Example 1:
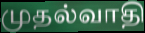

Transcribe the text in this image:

முதல்வாதி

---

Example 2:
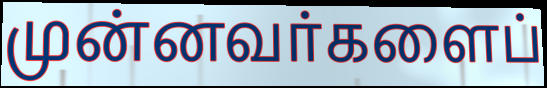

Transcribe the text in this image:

முன்னவர்களைப்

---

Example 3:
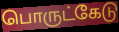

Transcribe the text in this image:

பொருட்கேடு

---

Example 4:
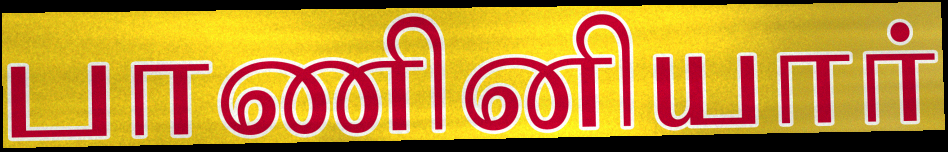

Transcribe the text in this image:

பாணினியார்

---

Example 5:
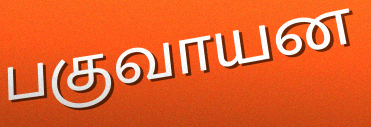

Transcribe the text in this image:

பகுவாயன